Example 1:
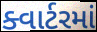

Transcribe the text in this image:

ક્વાર્ટરમાં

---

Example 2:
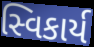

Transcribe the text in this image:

સ્વિકાર્ય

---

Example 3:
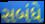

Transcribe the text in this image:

સબંધે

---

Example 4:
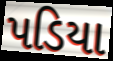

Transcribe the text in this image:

પડિયા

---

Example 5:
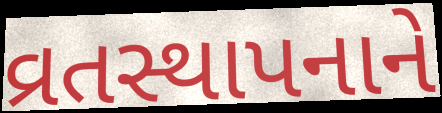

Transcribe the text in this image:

વ્રતસ્થાપનાને